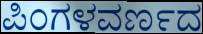
ಪಿಂಗಳವರ್ಣದ